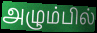
அழும்பில்